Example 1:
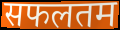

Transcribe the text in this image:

सफलतम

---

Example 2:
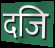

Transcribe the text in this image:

दजि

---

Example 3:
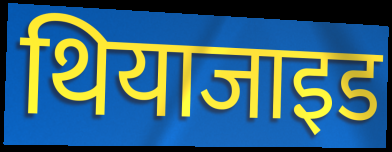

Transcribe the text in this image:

थियाजाइड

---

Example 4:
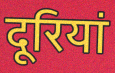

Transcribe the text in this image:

दूरियां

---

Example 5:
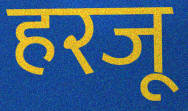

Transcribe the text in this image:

हरजू